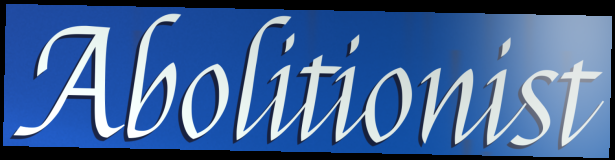
Abolitionist